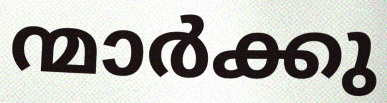
ന്മാർക്കു